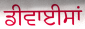
ਡੀਵਾਈਸਾਂ